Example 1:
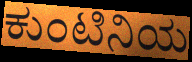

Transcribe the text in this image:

ಕುಂಟಿನಿಯ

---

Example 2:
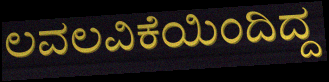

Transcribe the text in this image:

ಲವಲವಿಕೆಯಿಂದಿದ್ದ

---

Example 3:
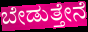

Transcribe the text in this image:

ಬೇಡುತ್ತೇನೆ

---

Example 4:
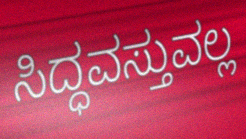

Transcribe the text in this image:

ಸಿದ್ಧವಸ್ತುವಲ್ಲ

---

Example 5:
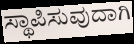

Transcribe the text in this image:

ಸ್ಥಾಪಿಸುವುದಾಗಿ